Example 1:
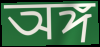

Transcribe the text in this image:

অঙ্গ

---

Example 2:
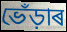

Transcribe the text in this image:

ভেঁড়াৰ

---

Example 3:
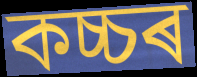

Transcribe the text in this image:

কচ্চৰ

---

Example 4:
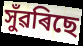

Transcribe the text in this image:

সুঁৱৰিছে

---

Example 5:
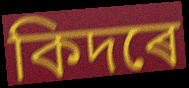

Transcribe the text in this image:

কিদৰে